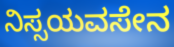
ನಿಸ್ಸಯವಸೇನ